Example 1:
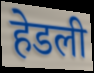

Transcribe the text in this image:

हेडली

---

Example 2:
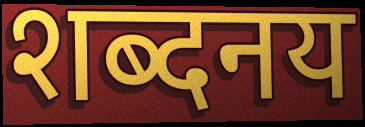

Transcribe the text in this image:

शब्दनय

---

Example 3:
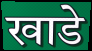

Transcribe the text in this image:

खाडे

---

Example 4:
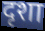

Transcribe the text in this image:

दृशा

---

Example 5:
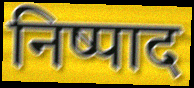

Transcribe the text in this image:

निष्पाद